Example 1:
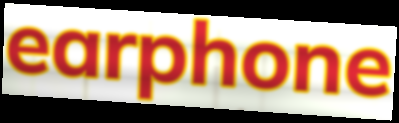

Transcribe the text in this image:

earphone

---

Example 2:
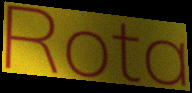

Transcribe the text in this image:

Rota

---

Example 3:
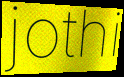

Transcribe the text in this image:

jothi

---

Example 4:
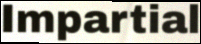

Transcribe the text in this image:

Impartial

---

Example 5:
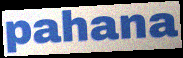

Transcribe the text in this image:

pahana